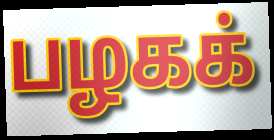
பழகக்